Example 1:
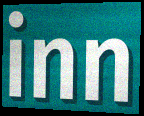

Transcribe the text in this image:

inn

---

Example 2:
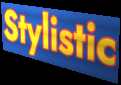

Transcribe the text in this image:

Stylistic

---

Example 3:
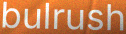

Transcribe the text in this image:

bulrush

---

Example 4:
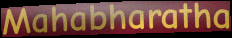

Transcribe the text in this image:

Mahabharatha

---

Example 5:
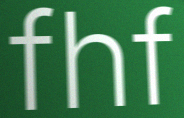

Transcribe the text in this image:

fhf